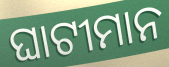
ଘାଟୀମାନ